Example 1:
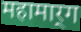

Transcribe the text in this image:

महामार्ग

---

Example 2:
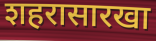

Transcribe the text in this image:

शहरासारखा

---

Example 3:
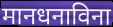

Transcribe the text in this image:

मानधनाविना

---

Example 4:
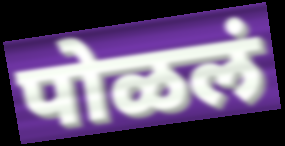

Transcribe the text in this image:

पोळलं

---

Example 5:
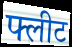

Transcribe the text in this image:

फ्लीट